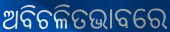
ଅବିଚଳିତଭାବରେ